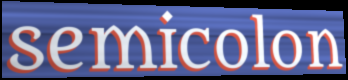
semicolon